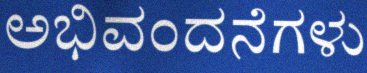
ಅಭಿವಂದನೆಗಳು